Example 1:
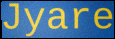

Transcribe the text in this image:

Jyare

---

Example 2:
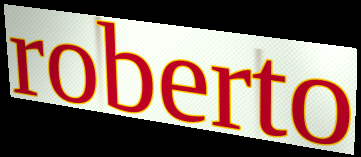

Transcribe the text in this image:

roberto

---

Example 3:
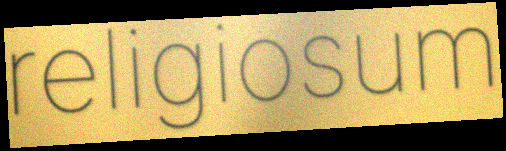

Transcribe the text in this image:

religiosum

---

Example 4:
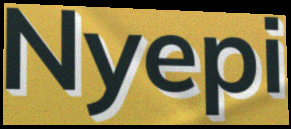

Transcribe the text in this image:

Nyepi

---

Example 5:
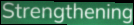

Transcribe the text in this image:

Strengthening